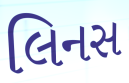
લિનસ